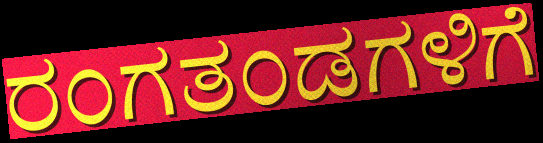
ರಂಗತಂಡಗಳಿಗೆ